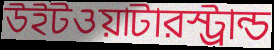
উইটওয়াটারস্ট্রান্ড